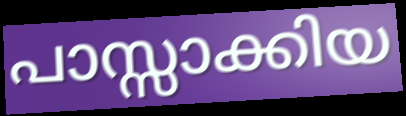
പാസ്സാക്കിയ